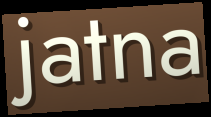
jatna